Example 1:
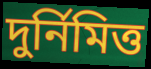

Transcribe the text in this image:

দুর্নিমিত্ত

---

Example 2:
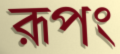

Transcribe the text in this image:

রূপং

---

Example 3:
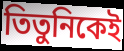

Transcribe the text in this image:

তিতুনিকেই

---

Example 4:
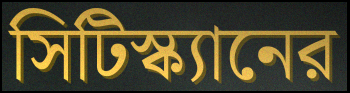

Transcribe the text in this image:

সিটিস্ক্যানের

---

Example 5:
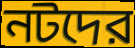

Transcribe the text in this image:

নটদের